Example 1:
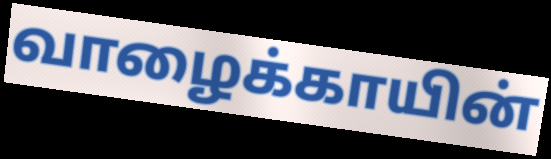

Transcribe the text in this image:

வாழைக்காயின்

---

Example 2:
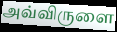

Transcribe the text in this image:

அவ்விருளை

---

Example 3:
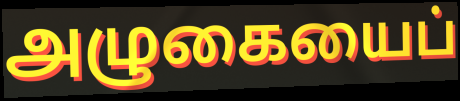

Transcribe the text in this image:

அழுகையைப்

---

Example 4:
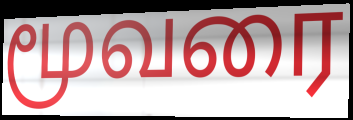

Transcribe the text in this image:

மூவரை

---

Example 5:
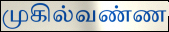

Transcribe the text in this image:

முகில்வண்ண